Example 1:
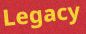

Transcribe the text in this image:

Legacy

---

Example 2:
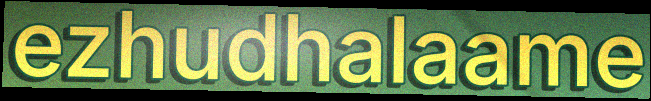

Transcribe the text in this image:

ezhudhalaame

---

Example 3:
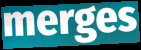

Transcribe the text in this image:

merges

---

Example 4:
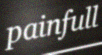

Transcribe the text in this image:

painfull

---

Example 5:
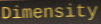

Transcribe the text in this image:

Dimensity